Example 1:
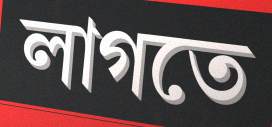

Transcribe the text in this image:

লাগতে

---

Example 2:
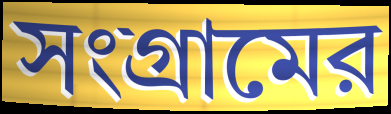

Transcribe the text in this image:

সংগ্রামের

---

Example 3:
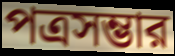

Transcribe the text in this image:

পত্রসম্ভার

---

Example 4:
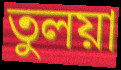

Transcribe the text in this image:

তুলয়া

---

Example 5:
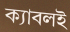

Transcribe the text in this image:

ক্যাবলই